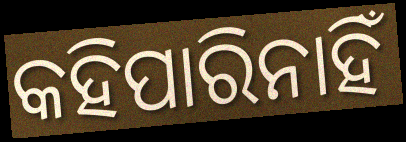
କହିପାରିନାହିଁ